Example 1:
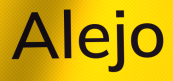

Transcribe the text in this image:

Alejo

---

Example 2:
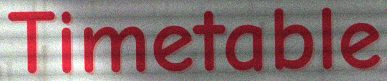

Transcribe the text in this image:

Timetable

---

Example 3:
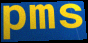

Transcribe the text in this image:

pms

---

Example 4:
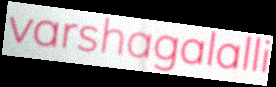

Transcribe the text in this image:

varshagalalli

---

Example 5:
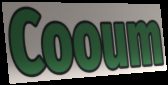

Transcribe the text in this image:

Cooum